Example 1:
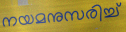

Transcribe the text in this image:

നയമനുസരിച്ച്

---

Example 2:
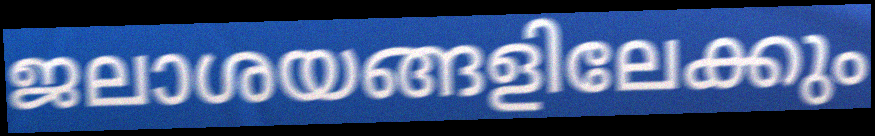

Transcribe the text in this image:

ജലാശയങ്ങളിലേക്കും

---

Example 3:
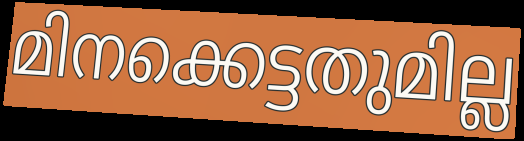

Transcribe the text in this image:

മിനക്കെട്ടതുമില്ല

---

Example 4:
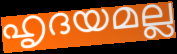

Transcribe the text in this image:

ഹൃദയമല്ല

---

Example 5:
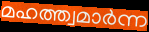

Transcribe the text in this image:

മഹത്ത്വമാർന്ന